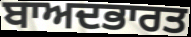
ਬਾਅਦਭਾਰਤ